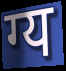
ग्य